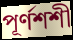
পূর্ণশশী